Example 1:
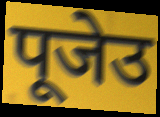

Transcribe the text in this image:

पूजेउ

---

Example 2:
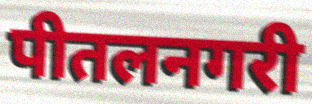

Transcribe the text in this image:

पीतलनगरी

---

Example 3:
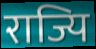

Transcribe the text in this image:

राज्यि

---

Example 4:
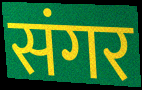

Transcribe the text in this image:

संगर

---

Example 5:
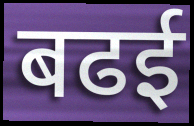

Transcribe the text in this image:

बढई